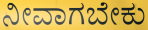
ನೀವಾಗಬೇಕು